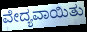
ವೇದ್ಯವಾಯಿತು